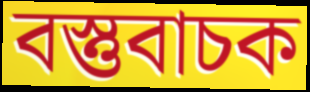
বস্তুবাচক